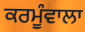
ਕਰਮੂੰਵਾਲਾ